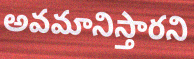
అవమానిస్తారని